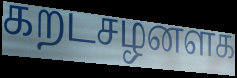
கறடசழனளக